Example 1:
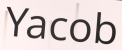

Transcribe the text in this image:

Yacob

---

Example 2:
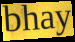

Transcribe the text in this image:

bhay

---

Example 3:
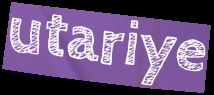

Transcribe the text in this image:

utariye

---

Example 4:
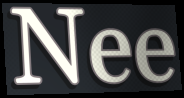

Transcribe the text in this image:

Nee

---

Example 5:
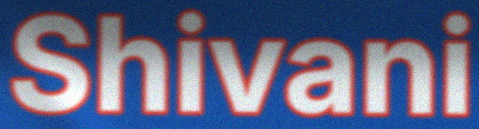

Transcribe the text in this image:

Shivani